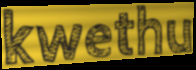
kwethu